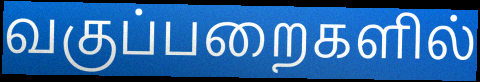
வகுப்பறைகளில்